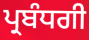
ਪ੍ਰਬੰਧਗੀ